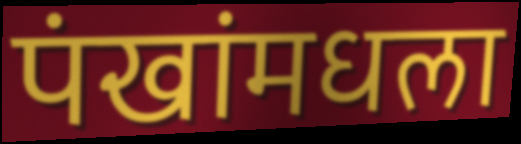
पंखांमधला